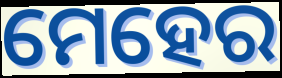
ମେହେର